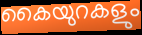
കൈയുറകളും